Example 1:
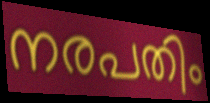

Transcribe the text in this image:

നരപതിം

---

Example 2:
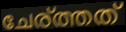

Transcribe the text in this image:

ചേര്ത്തത്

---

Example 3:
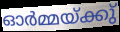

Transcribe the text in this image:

ഓർമ്മയ്ക്കു്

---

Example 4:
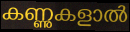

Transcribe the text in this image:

കണ്ണുകളാൽ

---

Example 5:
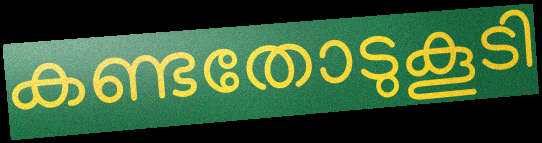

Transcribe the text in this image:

കണ്ടതോടുകൂടി